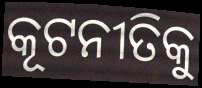
କୂଟନୀତିକୁ